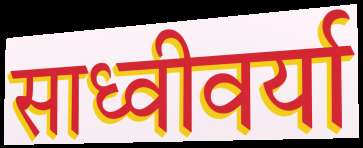
साध्वीवर्या